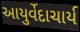
આયુર્વેદાચાર્ય